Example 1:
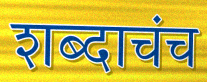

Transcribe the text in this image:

शब्दाचंच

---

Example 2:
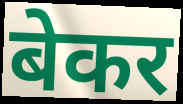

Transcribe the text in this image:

बेकर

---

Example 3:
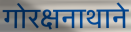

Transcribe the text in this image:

गोरक्षनाथाने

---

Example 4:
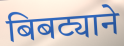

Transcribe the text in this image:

बिबट्याने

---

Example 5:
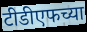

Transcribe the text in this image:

टीडीएफच्या